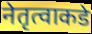
नेतृत्वाकडे